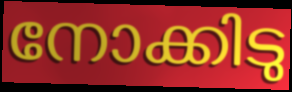
നോക്കിടു